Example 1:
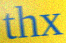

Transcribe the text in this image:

thx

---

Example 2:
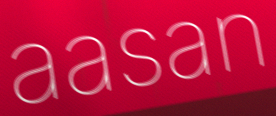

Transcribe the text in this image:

aasan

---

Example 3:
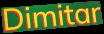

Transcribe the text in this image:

Dimitar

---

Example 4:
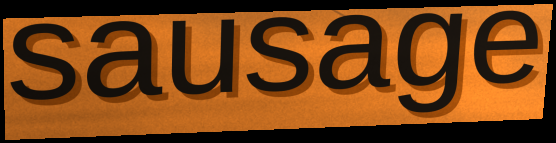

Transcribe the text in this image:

sausage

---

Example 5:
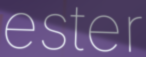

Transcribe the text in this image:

ester